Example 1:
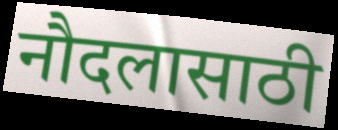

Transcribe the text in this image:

नौदलासाठी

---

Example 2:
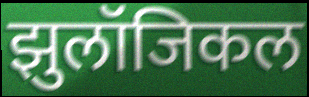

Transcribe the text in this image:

झुलॉजिकल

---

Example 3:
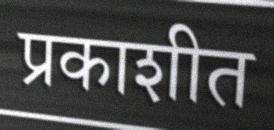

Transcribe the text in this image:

प्रकाशीत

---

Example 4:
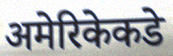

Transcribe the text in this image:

अमेरिकेकडे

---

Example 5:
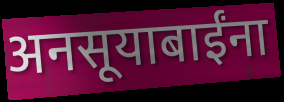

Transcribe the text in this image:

अनसूयाबाईंना